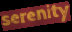
serenity